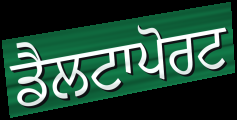
ਡੈਲਟਾਪੋਰਟ